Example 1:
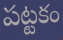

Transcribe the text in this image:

పట్టకం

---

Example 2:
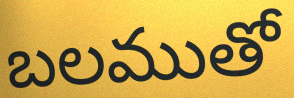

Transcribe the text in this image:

బలముతో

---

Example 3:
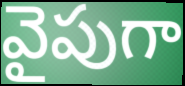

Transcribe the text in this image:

వైపుగా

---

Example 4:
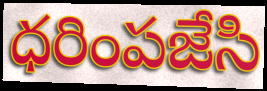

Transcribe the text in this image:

ధరింపజేసి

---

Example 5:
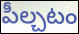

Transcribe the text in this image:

పీల్చటం